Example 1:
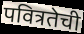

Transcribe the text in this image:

पवित्रतेची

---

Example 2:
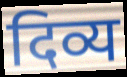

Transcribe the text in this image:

दिव्य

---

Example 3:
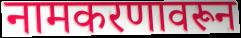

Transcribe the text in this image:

नामकरणावरून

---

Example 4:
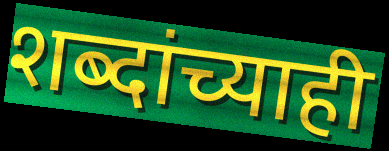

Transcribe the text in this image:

शब्दांच्याही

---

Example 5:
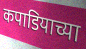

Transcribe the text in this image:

कपाडियाच्या